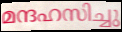
മന്ദഹസിച്ചു